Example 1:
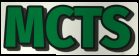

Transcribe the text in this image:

MCTS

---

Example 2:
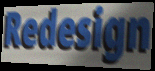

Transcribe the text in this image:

Redesign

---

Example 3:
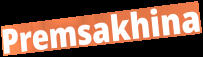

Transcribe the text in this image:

Premsakhina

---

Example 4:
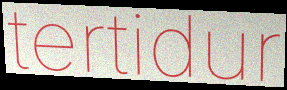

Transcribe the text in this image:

tertidur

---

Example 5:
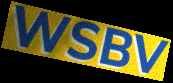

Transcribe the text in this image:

WSBV